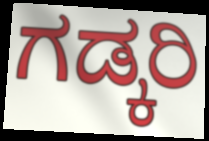
ಗಡ್ಕರಿ